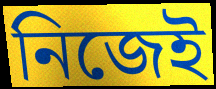
নিজেই